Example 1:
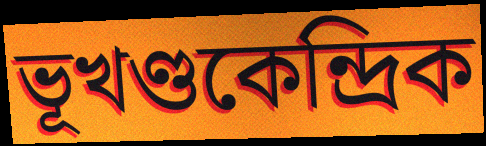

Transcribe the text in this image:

ভূখণ্ডকেন্দ্রিক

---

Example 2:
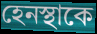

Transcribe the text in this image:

হেনস্থাকে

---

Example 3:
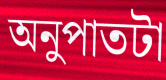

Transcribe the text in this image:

অনুপাতটা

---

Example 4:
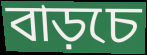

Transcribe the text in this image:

বাড়চে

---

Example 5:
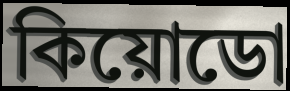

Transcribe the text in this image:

কিয়োডো